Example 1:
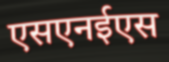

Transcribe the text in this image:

एसएनईएस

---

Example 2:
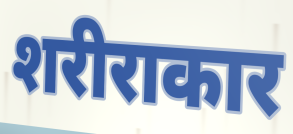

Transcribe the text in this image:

शरीराकार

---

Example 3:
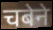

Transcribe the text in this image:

चबेने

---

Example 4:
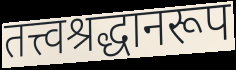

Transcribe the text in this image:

तत्त्वश्रद्धानरूप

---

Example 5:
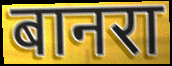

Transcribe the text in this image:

बानरा